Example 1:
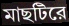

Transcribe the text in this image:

মাছটিরে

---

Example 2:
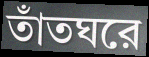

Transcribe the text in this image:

তাঁতঘরে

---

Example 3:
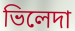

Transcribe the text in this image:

ভিলেদা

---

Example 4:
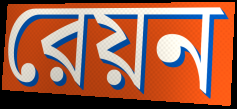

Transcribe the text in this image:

রেয়ন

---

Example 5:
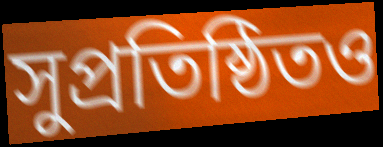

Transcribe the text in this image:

সুপ্রতিষ্ঠিতও